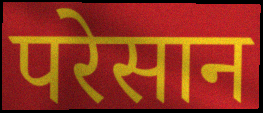
परेसान